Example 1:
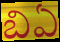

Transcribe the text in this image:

బిఏ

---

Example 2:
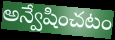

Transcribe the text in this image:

అన్వేషించటం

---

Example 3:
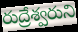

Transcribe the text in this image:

రుద్రేశ్వరుని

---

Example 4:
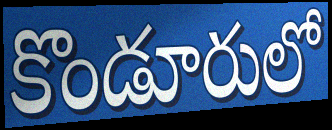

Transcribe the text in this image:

కొండూరులో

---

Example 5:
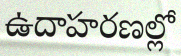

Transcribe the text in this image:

ఉదాహరణల్లో